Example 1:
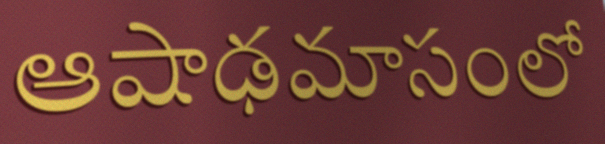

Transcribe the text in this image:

ఆషాఢమాసంలో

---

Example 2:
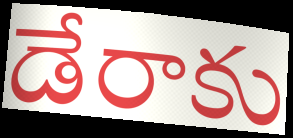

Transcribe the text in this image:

డేరాకు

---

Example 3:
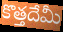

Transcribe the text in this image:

కొత్తదేమీ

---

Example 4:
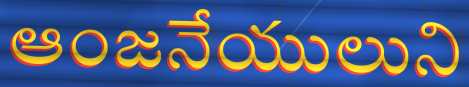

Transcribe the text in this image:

ఆంజనేయులుని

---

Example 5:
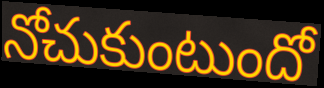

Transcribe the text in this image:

నోచుకుంటుందో